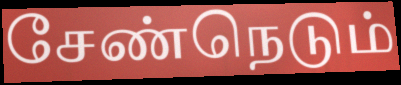
சேண்நெடும்